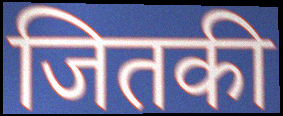
जितकी